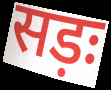
सड़ः